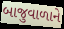
બાજુવાળાને